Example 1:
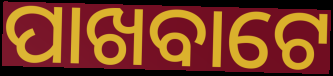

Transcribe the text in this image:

ପାଖବାଟେ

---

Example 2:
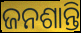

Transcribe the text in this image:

ଜନଶାନ୍ତି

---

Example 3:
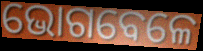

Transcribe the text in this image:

ଭୋଗବେଳେ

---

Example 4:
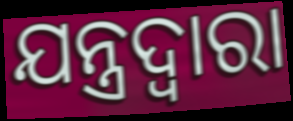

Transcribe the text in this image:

ଯନ୍ତ୍ରଦ୍ଵାରା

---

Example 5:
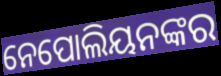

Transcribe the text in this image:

ନେପୋଲିୟନଙ୍କର